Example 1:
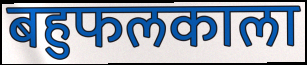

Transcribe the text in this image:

बहुफलकाला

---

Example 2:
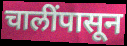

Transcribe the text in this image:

चालींपासून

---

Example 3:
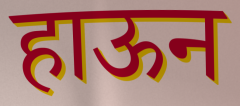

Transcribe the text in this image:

हाऊन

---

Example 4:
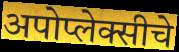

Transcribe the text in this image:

अपोप्लेक्सीचे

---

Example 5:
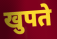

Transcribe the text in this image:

खुपते